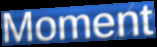
Moment